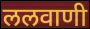
ललवाणी